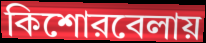
কিশোরবেলায়